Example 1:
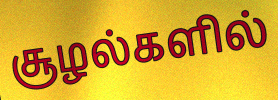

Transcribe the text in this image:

சூழல்களில்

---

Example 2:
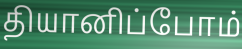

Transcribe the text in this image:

தியானிப்போம்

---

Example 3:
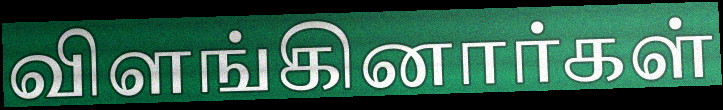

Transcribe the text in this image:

விளங்கினார்கள்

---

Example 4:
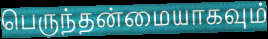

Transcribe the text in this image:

பெருந்தன்மையாகவும்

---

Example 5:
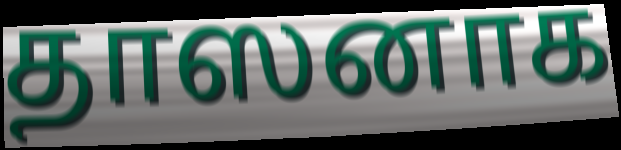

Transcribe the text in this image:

தாஸனாக